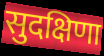
सुदक्षिणा